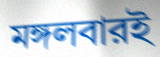
মঙ্গলবারই